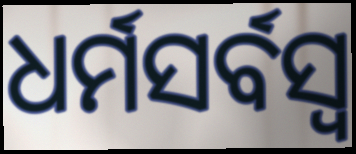
ଧର୍ମସର୍ବସ୍ୱ